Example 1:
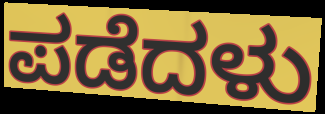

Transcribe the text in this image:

ಪಡೆದಳು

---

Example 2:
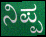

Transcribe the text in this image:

ನಿಪ್ಪ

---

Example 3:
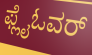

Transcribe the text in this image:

ಫ್ಲೈಓವರ್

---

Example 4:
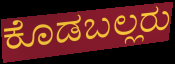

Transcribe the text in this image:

ಕೊಡಬಲ್ಲರು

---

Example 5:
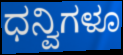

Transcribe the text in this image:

ಧನ್ವಿಗಳೂ